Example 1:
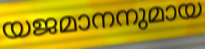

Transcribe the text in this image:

യജമാനനുമായ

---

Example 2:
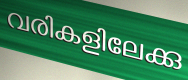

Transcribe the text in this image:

വരികളിലേക്കു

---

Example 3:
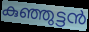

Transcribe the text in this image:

കുഞ്ഞുട്ടൻ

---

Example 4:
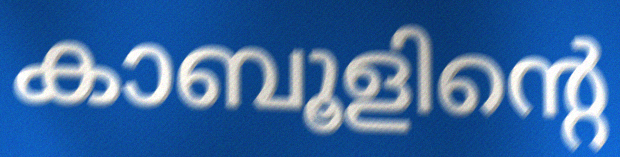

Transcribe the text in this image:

കാബൂളിന്റെ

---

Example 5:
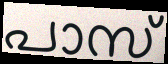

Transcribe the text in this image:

പാസ്